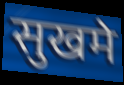
सुखमे